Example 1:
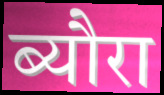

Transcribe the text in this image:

ब्यौरा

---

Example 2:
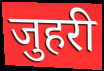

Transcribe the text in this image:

जुहरी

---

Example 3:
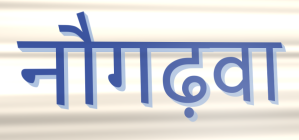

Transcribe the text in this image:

नौगढ़वा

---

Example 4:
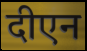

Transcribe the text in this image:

दीएन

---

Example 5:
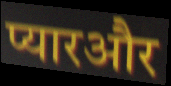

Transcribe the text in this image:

प्यारऔर